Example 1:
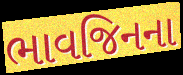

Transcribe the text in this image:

ભાવજિનના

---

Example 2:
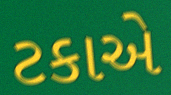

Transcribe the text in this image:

ટકાએ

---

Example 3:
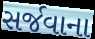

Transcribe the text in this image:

સર્જવાના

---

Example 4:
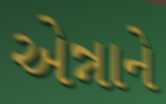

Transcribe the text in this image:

એન્નાને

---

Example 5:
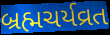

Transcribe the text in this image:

બ્રહ્મચર્યવ્રત